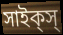
সাইক্‌স্